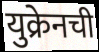
युक्रेनची